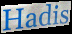
Hadis